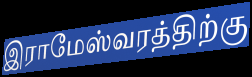
இராமேஸ்வரத்திற்கு